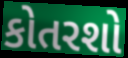
કોતરશો